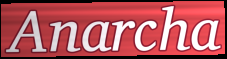
Anarcha